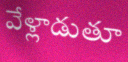
వేళ్లాడుతూ